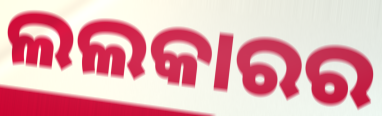
ଲଲକାରର